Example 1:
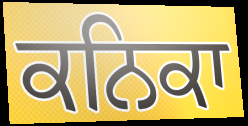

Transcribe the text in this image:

ਕਨਿਕਾ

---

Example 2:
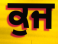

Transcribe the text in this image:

ਕੁਜ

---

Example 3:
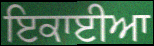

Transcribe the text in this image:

ਇਕਾਈਆ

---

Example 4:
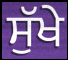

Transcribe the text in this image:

ਸੁੱਖੇ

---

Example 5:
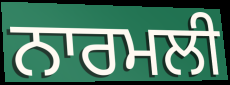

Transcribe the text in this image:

ਨਾਰਮਲੀ